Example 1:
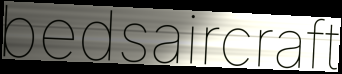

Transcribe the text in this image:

bedsaircraft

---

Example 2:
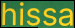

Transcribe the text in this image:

hissa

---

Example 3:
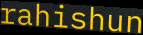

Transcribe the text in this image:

rahishun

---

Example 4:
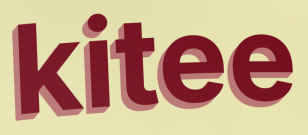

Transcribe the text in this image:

kitee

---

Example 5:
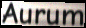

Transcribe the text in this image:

Aurum